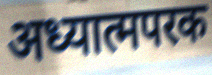
अध्यात्मपरक